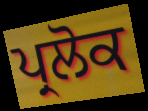
ਪ੍ਰਲੋਕ